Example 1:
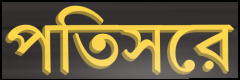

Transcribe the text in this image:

পতিসরে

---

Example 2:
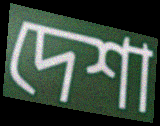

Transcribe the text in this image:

দেশা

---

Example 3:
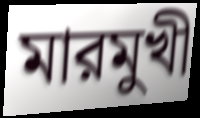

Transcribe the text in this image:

মারমুখী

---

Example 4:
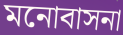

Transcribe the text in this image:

মনোবাসনা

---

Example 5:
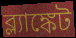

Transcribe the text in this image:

ব্ল্যাঙ্কেট